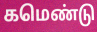
கமெண்டு